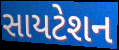
સાયટેશન